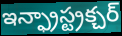
ఇన్ఫ్రాస్ట్రక్చర్